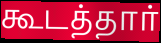
கூடத்தார்